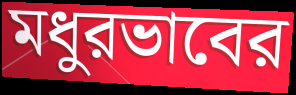
মধুরভাবের